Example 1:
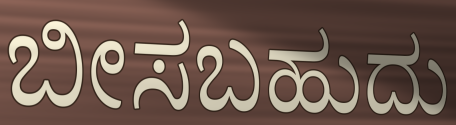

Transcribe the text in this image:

ಬೀಸಬಹುದು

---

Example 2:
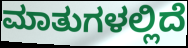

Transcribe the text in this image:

ಮಾತುಗಳಲ್ಲಿದೆ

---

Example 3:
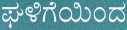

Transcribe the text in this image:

ಘಳಿಗೆಯಿಂದ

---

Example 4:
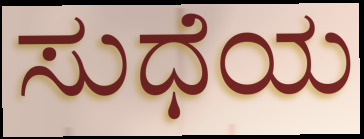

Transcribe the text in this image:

ಸುಧೆಯ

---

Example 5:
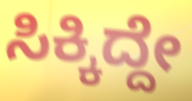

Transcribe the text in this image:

ಸಿಕ್ಕಿದ್ದೇ